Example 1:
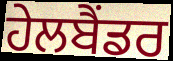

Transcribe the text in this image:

ਹੇਲਬੈਂਡਰ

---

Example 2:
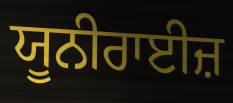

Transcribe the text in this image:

ਯੂਨੀਰਾਈਜ਼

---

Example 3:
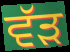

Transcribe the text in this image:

ਵੱੜ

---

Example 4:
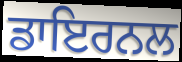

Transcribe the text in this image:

ਡਾਇਰਨਲ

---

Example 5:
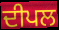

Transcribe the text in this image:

ਦੀਪਲ